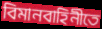
বিমানবাহিনীতে